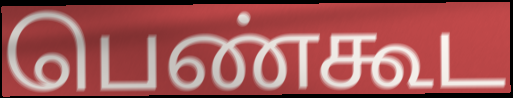
பெண்கூட